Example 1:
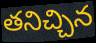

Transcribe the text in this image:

తనిచ్చిన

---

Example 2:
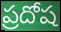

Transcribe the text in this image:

ప్రదోష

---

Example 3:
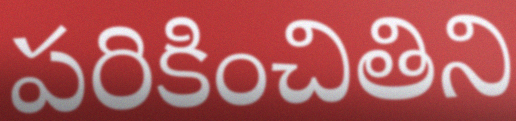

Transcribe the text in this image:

పరికించితిని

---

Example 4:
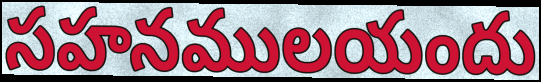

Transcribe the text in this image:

సహనములయందు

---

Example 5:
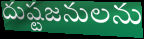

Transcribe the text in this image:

దుష్టజనులను